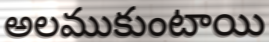
అలముకుంటాయి